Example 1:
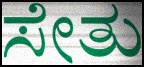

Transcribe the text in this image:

ಸೇತು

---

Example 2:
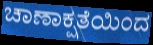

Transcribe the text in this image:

ಚಾಣಾಕ್ಷತೆಯಿಂದ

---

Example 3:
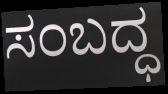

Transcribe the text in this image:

ಸಂಬದ್ಧ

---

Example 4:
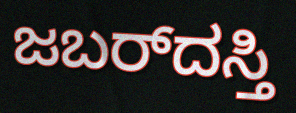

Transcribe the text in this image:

ಜಬರ್‌ದಸ್ತಿ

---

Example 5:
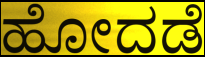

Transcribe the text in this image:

ಹೋದಡೆ